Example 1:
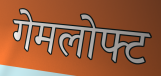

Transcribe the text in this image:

गेमलोफ्ट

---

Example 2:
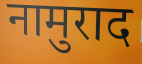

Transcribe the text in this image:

नामुराद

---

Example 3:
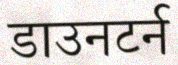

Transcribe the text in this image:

डाउनटर्न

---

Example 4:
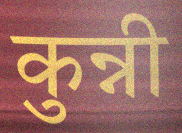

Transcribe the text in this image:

कुन्नी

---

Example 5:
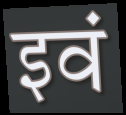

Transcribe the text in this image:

इवं